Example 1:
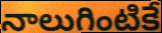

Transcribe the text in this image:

నాలుగింటికే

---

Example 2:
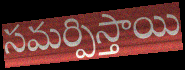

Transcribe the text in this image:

సమర్పిస్తాయి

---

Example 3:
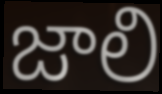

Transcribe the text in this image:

జాలి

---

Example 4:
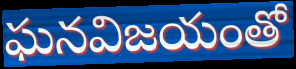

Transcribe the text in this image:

ఘనవిజయంతో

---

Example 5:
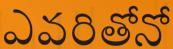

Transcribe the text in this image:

ఎవరితోనో